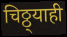
चिठ्ठ्याही